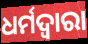
ଧର୍ମଦ୍ୱାରା